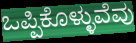
ಒಪ್ಪಿಕೊಳ್ಳುವೆವು